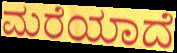
ಮರೆಯಾದೆ